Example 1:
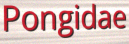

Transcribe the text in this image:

Pongidae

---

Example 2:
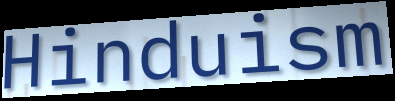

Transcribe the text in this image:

Hinduism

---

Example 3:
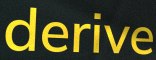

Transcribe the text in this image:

derive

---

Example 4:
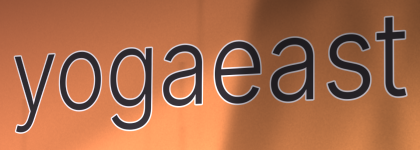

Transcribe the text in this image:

yogaeast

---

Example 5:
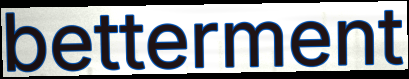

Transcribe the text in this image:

betterment